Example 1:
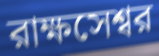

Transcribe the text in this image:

রাক্ষসেশ্বর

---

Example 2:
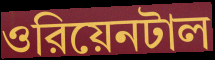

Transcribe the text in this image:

ওরিয়েনটাল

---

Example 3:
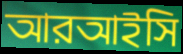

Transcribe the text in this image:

আরআইসি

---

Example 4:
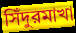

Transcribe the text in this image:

সিঁদুরমাখা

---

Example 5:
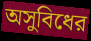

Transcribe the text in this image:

অসুবিধের